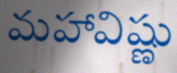
మహావిష్ణు